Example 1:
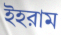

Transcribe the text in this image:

ইহরাম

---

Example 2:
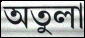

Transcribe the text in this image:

অতুলা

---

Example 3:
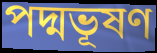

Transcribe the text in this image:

পদ্মভূষণ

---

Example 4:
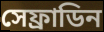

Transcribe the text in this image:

সেফ্রাডিন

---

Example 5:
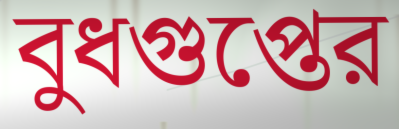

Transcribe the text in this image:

বুধগুপ্তের